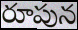
రూపున